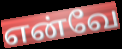
என்வே